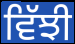
ਵਿੱਝੀ